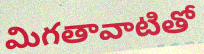
మిగతావాటితో